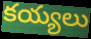
కయ్యలు